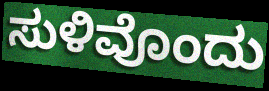
ಸುಳಿವೊಂದು